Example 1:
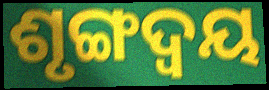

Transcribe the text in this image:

ଶୃଙ୍ଗଦ୍ୱୟ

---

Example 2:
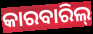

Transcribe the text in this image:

କାରବାରିଲ୍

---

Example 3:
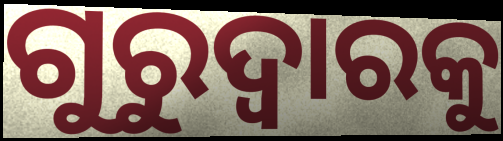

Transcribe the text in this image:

ଗୁରୁଦ୍ୱାରକୁ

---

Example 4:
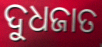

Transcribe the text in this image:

ଦୁଧଜାତ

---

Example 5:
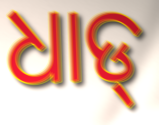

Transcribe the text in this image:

ଧାଡ୍